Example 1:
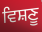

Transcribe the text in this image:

ਵਿਸ਼ਣੂ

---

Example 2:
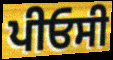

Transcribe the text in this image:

ਪੀਓਸੀ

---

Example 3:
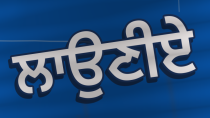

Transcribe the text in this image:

ਲਾਉਣੀਏ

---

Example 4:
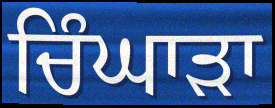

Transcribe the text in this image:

ਚਿੰਘਾੜਾ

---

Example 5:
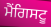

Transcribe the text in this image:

ਮੈਂਗਿਸਟੂ